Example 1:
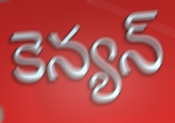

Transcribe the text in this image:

కెన్యన్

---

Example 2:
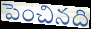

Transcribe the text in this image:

పెంచినది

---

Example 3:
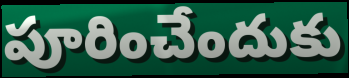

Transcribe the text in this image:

పూరించేందుకు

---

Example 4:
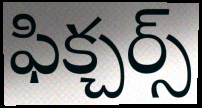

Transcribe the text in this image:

ఫిక్చర్స్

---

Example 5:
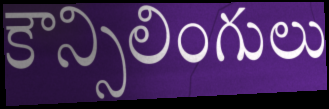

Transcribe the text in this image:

కౌన్సిలింగులు